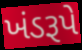
ખંડરૂપે